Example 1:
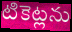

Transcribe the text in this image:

టికెట్లను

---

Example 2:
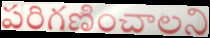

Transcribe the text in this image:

పరిగణించాలని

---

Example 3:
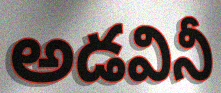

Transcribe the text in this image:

అడవినీ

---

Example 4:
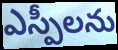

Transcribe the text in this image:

ఎస్పీలను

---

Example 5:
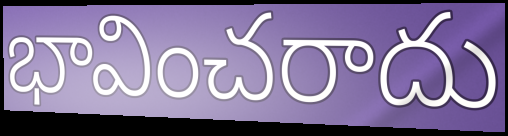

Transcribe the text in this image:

భావించరాదు